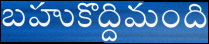
బహుకొద్దిమంది